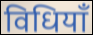
विधियाँ